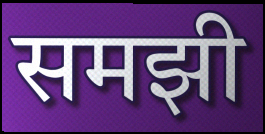
समझी